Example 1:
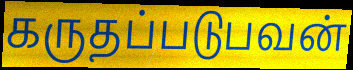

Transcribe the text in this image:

கருதப்படுபவன்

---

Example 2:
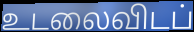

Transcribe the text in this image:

உடலைவிடப்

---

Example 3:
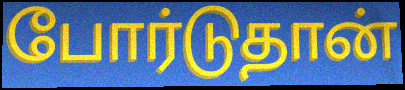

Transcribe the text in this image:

போர்டுதான்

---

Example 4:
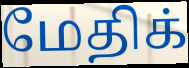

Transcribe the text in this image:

மேதிக்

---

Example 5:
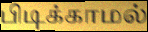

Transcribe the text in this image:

பிடிக்காமல்